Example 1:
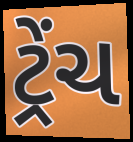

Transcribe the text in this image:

ટ્રેંચ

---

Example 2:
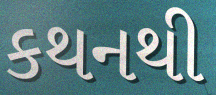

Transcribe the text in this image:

કથનથી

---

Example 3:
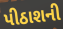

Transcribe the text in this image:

પીઠાશની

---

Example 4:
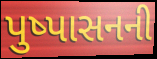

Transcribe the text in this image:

પુષ્પાસનની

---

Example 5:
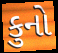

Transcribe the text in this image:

કુનો